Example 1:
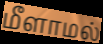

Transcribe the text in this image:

மீளாமல்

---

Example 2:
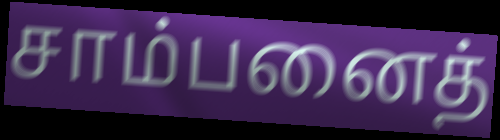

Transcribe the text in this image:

சாம்பனைத்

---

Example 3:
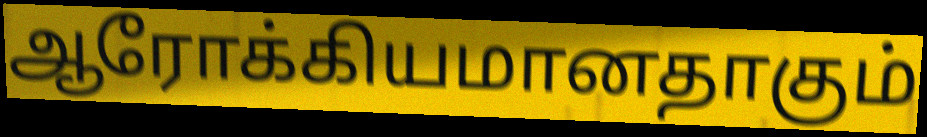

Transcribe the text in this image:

ஆரோக்கியமானதாகும்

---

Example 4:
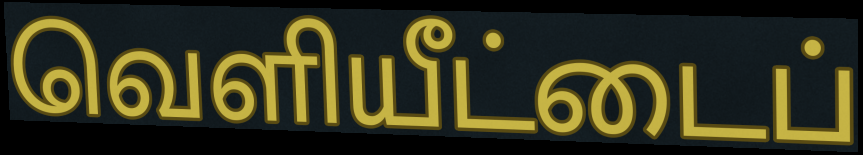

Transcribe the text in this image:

வெளியீட்டைப்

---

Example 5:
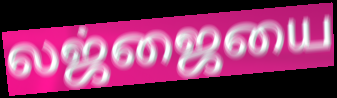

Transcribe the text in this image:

லஜ்ஜையை